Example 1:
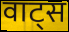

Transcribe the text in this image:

वाट्स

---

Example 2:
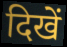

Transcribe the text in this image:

दिखें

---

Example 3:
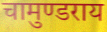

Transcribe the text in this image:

चामुण्डराय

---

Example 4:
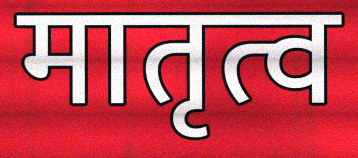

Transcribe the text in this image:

मातृत्व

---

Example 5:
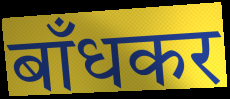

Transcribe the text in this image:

बाँधकर